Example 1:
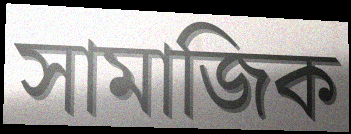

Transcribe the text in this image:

সামাজিক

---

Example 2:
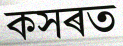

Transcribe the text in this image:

কসৰত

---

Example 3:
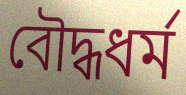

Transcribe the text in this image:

বৌদ্ধধৰ্ম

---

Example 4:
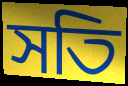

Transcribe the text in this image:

সতি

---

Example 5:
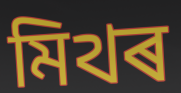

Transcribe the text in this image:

মিথৰ